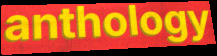
anthology